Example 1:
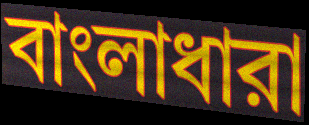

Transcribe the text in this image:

বাংলাধারা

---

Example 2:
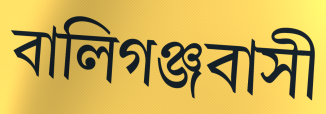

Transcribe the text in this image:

বালিগঞ্জবাসী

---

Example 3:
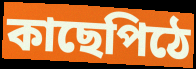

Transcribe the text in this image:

কাছেপিঠে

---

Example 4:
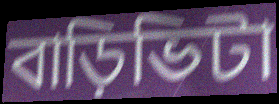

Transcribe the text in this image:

বাড়িভিটা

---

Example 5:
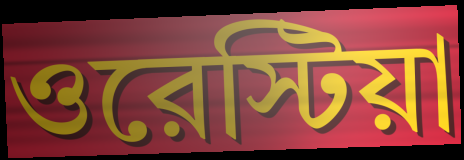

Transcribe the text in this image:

ওরেস্টিয়া